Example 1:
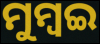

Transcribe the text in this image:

ମୁମ୍ୱଇ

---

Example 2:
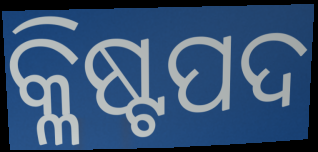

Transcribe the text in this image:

କ୍ଳିଷ୍ଟପଦ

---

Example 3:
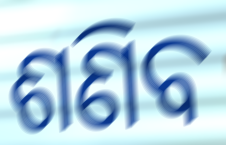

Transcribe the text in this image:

ଶଣିବ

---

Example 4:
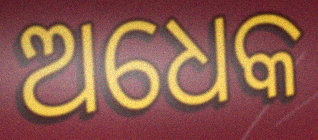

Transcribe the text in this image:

ଅଧେକ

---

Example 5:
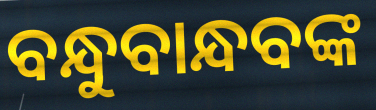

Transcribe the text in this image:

ବନ୍ଧୁବାନ୍ଧବଙ୍କ